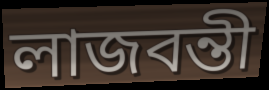
লাজবন্তী